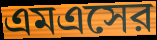
এমএসের